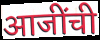
आजींची